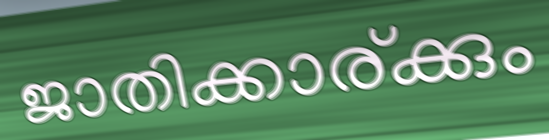
ജാതിക്കാര്ക്കും